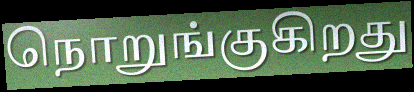
நொறுங்குகிறது